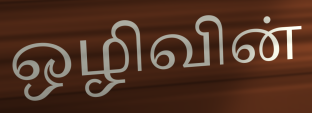
ஒழிவின்